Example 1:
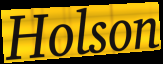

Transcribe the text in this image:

Holson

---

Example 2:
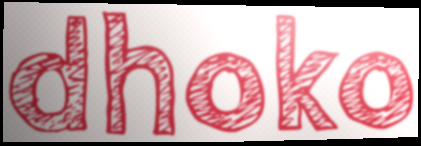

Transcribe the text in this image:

dhoko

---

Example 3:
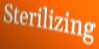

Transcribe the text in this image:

Sterilizing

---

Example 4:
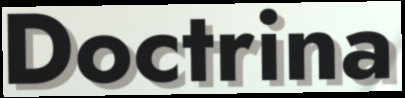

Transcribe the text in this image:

Doctrina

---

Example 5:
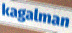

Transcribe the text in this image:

kagalman